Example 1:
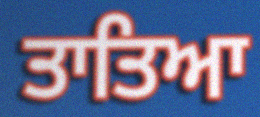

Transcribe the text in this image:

ਤਾਤਿਆ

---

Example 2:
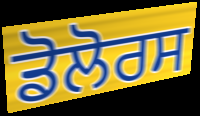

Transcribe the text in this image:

ਡੋਲੋਰਸ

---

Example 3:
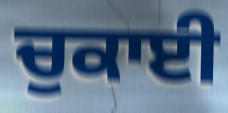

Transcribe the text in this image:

ਚੁਕਾਈ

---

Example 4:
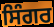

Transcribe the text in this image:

ਸਿੰਗਰ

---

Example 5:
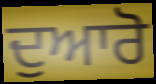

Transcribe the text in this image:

ਦੁਆਰੋ